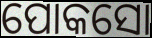
ପୋକସୋ